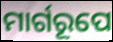
ମାର୍ଗରୂପେ